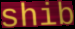
shib